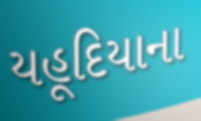
યહૂદિયાના